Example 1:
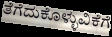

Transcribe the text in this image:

ತೆಗೆದುಕೊಳ್ಳುವಿಕೆಗೆ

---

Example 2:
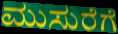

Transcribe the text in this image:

ಮುಸುರೆಗೆ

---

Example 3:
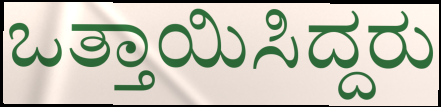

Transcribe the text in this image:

ಒತ್ತಾಯಿಸಿದ್ದರು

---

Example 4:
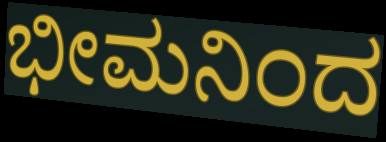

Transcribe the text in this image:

ಭೀಮನಿಂದ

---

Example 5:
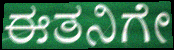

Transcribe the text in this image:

ಈತನಿಗೇ